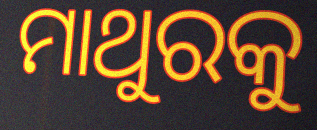
ମାଥୁରକୁ